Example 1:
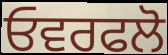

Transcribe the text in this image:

ਓਵਰਫਲੋ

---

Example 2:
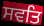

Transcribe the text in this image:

ਸਵਤਿ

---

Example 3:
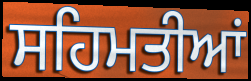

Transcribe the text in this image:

ਸਹਿਮਤੀਆਂ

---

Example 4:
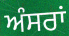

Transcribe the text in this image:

ਅੰਸਰਾਂ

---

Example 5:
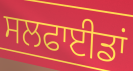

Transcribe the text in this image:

ਸਲਫਾਈਡਾਂ